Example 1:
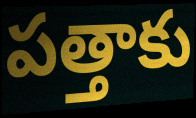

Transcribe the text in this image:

పత్తాకు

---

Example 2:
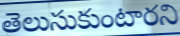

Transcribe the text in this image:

తెలుసుకుంటారని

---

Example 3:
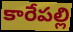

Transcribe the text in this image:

కారేపల్లి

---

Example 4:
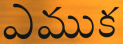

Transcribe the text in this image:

ఎముక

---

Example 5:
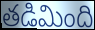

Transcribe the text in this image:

తడిమింది